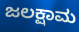
ಜಲಕ್ಷಾಮ